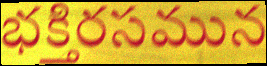
భక్తిరసమున